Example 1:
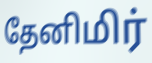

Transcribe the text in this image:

தேனிமிர்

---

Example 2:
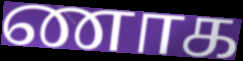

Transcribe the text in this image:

ணாக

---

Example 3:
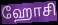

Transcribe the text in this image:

ஹோசி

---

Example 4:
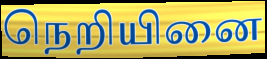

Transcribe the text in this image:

நெறியினை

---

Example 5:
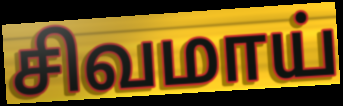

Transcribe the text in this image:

சிவமாய்